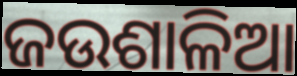
ଜଉଶାଳିଆ